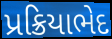
પ્રક્રિયાભેદ